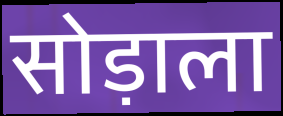
सोड़ाला